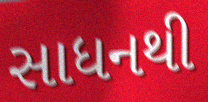
સાધનથી